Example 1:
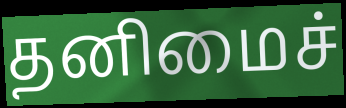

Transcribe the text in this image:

தனிமைச்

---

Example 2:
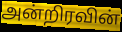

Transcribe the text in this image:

அன்றிரவின்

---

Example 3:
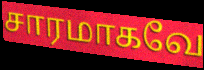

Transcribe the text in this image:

சாரமாகவே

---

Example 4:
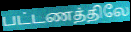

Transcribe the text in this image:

பட்டணத்திலே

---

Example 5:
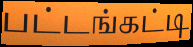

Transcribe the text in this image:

பட்டங்கட்டி